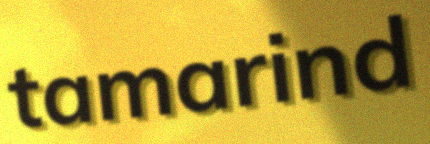
tamarind